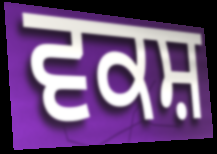
ਵਕਸ਼